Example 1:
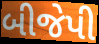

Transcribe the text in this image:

બીજેપી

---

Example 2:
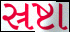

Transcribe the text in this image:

સ્રષ્ટા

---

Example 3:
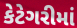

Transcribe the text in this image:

કેટેગરીમાં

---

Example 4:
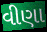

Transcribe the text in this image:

વીણા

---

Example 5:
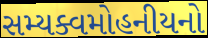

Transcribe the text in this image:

સમ્યક્વમોહનીયનો